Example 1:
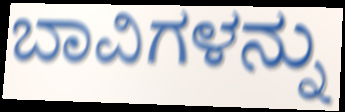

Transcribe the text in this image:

ಬಾವಿಗಳನ್ನು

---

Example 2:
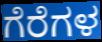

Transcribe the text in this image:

ಗೆರೆಗಳ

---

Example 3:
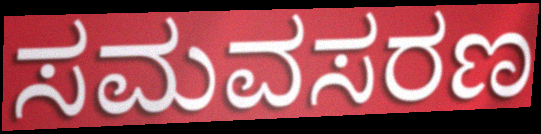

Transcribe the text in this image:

ಸಮವಸರಣ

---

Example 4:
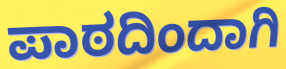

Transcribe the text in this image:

ಪಾಠದಿಂದಾಗಿ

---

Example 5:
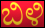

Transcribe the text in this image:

ಬಿಳಿ